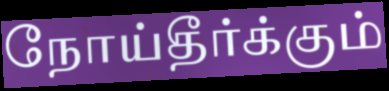
நோய்தீர்க்கும்